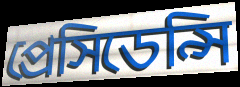
প্রেসিডেন্সি